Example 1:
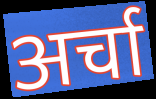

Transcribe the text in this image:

अर्चा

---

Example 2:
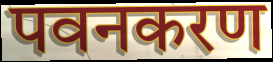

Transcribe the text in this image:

पवनकरण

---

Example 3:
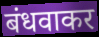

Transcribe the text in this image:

बंधवाकर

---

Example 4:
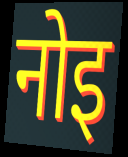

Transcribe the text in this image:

नोइ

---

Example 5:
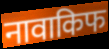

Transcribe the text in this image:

नावाकिफ